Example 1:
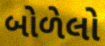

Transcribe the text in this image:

બોળેલો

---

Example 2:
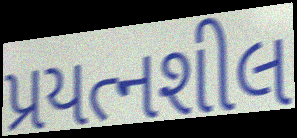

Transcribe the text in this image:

પ્રયત્નશીલ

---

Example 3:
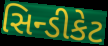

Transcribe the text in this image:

સિન્ડીકેટ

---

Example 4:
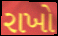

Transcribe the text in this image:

રાખો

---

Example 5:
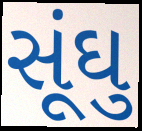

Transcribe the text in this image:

સૂંઘુ